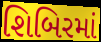
શિબિરમાં